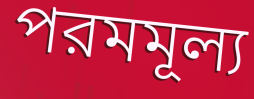
পরমমূল্য